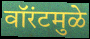
वॉरंटमुळे